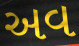
અવ